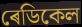
ৰেডিকেল